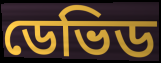
ডেভিড